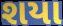
શયા